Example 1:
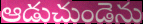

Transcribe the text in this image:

ఆడుచుండెను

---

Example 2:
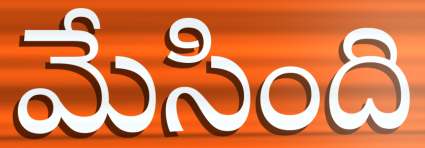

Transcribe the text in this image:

మేసింది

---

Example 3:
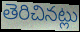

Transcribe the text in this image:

తెరిచినట్లు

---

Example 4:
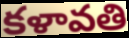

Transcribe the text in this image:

కళావతి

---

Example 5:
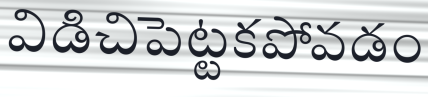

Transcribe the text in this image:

విడిచిపెట్టకపోవడం